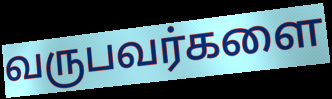
வருபவர்களை